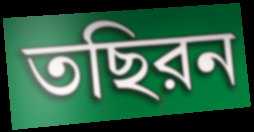
তছিরন